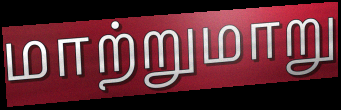
மாற்றுமாறு